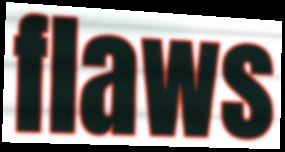
flaws